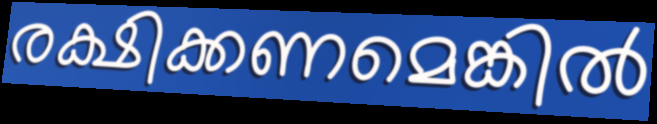
രക്ഷിക്കണമെങ്കിൽ